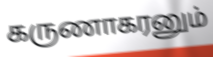
கருணாகரனும்